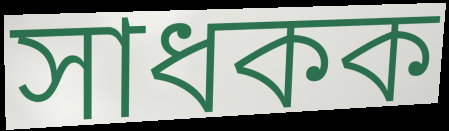
সাধকক